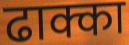
ढाक्का